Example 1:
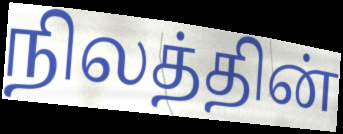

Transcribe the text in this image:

நிலத்தின்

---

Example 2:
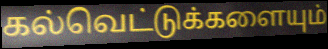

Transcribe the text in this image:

கல்வெட்டுக்களையும்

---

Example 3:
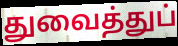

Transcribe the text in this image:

துவைத்துப்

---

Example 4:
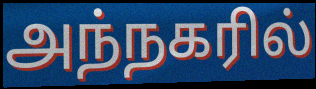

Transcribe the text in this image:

அந்நகரில்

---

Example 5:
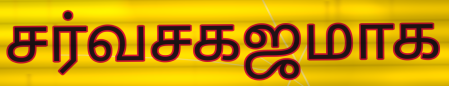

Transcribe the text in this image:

சர்வசகஜமாக